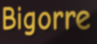
Bigorre